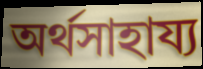
অর্থসাহায্য